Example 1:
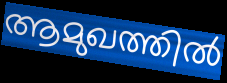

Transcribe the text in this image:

ആമുഖത്തിൽ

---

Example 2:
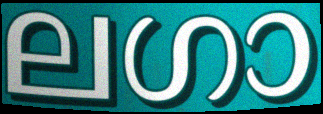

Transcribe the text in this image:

ലഗാ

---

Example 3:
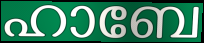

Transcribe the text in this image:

ഹാബേ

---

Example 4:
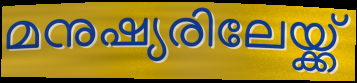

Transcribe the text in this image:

മനുഷ്യരിലേയ്ക്ക്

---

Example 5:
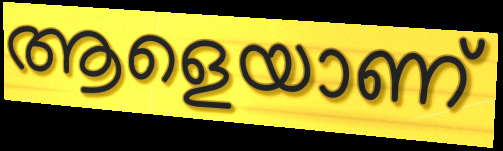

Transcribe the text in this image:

ആളെയാണ്